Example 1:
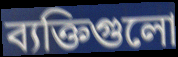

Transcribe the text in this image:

ব্যক্তিগুলো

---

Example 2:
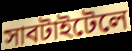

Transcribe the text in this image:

সাবটাইটেলে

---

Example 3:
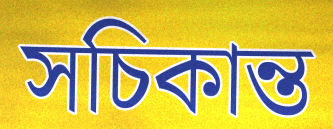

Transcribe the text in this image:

সচিকান্ত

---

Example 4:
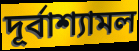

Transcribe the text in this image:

দূর্বাশ্যামল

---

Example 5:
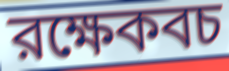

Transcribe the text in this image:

রক্ষেকবচ